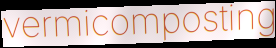
vermicomposting